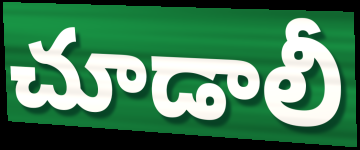
చూడాలీ